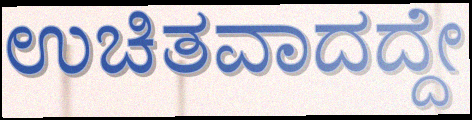
ಉಚಿತವಾದದ್ದೇ